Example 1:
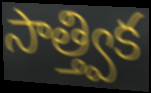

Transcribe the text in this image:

సాత్త్విక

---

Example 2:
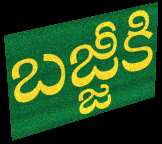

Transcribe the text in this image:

బజ్జీకి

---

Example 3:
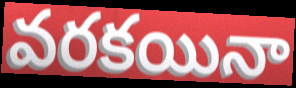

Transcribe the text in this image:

వరకయినా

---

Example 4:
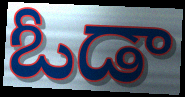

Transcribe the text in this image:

ఓడా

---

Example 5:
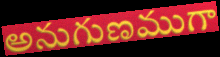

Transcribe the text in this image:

అనుగుణముగా